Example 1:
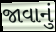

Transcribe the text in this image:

જાવાનું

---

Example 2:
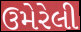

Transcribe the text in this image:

ઉમેરેલી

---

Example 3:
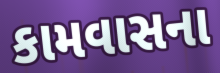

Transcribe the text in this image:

કામવાસના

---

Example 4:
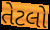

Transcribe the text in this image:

તેટલો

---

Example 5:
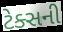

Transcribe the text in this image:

ટેક્સની